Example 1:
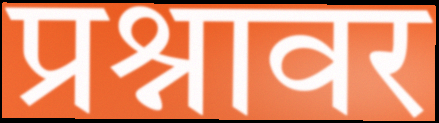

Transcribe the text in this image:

प्रश्नावर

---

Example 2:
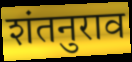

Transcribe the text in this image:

शंतनुराव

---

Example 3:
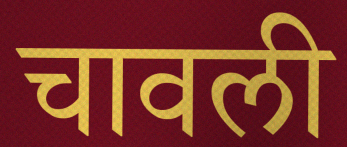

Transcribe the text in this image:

चावली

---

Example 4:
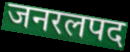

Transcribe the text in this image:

जनरलपद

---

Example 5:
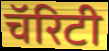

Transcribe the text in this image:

चॅरिटी